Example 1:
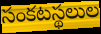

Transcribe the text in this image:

సంకటస్థలుల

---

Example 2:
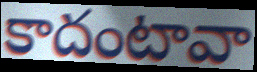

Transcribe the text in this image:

కాదంటావా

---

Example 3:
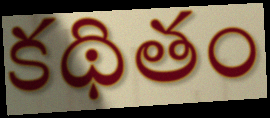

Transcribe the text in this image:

కథితం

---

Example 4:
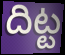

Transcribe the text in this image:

దిట్ట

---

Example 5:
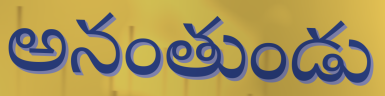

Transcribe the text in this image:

అనంతుండు